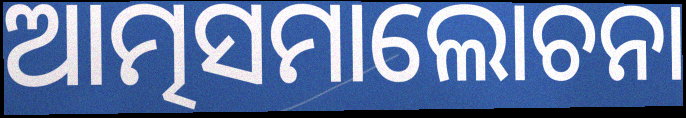
ଆତ୍ମସମାଲୋଚନା